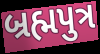
બ્રહ્મપુત્ર